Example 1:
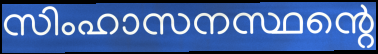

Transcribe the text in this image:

സിംഹാസനസ്ഥന്റെ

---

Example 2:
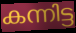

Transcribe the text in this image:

കന്നിട്ട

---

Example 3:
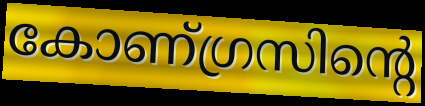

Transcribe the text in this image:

കോണ്ഗ്രസിന്റെ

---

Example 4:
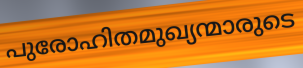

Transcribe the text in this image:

പുരോഹിതമുഖ്യന്മാരുടെ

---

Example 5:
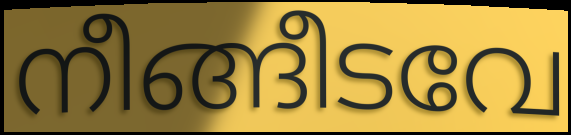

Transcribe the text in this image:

നീങ്ങീടവേ